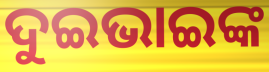
ଦୁଇଭାଇଙ୍କ